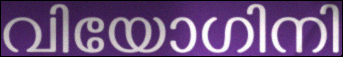
വിയോഗിനി